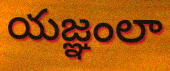
యజ్ఞంలా